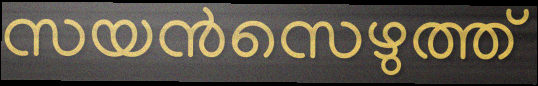
സയൻസെഴുത്ത്